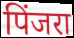
पिंजरा